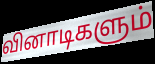
வினாடிகளும்